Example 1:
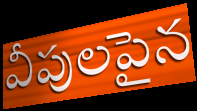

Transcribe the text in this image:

వీపులపైన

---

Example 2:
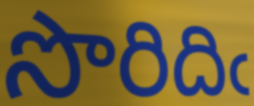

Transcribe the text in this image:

సొరిదిఁ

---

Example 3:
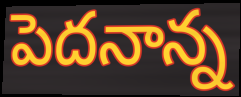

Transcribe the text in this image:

పెదనాన్న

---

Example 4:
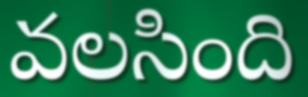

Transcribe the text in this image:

వలసింది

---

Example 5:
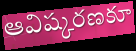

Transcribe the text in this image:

ఆవిష్కరణకూ